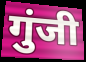
गुंजी